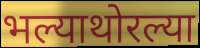
भल्याथोरल्या